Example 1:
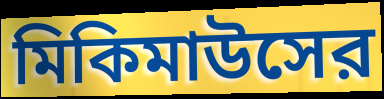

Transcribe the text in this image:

মিকিমাউসের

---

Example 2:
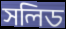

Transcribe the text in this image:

সলিড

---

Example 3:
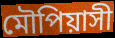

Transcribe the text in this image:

মৌপিয়াসী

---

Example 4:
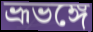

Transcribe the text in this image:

ভ্রূভঙ্গে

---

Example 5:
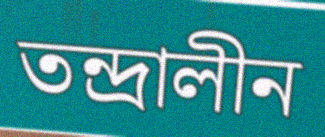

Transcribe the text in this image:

তন্দ্রালীন